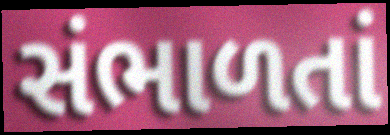
સંભાળતાં